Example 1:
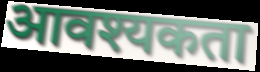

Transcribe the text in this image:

आवश्‍यकता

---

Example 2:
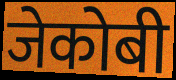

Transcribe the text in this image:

जेकोबी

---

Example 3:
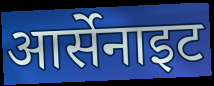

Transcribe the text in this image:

आर्सेनाइट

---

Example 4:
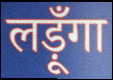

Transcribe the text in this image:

लड़ूँगा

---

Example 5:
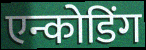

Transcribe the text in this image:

एन्कोडिंग